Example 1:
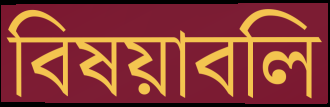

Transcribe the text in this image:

বিষয়াবলি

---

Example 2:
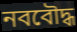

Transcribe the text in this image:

নববৌদ্ধ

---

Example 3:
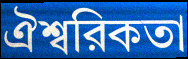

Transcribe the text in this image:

ঐশ্বরিকতা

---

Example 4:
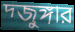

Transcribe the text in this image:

দ্জুঙ্গার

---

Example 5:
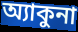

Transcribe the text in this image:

অ্যাকুনা